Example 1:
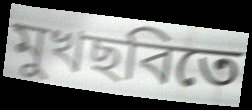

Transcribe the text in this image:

মুখছবিতে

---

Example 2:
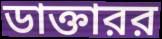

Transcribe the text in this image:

ডাক্তারর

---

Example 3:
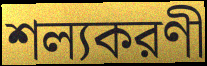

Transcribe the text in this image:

শল্যকরণী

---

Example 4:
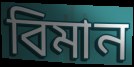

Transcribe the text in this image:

বিমান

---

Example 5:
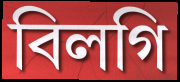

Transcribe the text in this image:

বিলগি